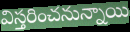
విస్తరించనున్నాయి